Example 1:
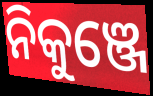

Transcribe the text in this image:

ନିକୁଞ୍ଜେ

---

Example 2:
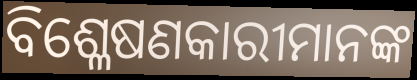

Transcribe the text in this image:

ବିଶ୍ଳେଷଣକାରୀମାନଙ୍କ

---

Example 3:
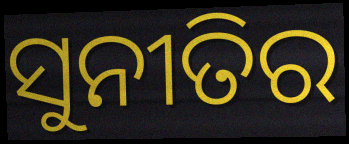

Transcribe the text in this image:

ସୁନୀତିର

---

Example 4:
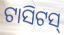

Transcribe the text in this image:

ଟାସିଟସ୍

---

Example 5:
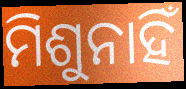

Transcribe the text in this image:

ମିଶୁନାହିଁ